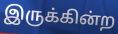
இருக்கின்ற